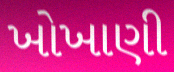
ખોખાણી